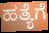
ಹತ್ಯೆಗೆ